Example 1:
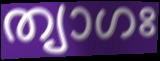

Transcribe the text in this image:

ത്യാഗഃ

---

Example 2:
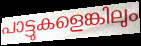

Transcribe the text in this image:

പാട്ടുകളെങ്കിലും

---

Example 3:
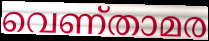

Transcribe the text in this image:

വെണ്താമര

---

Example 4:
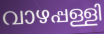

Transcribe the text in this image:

വാഴപ്പള്ളി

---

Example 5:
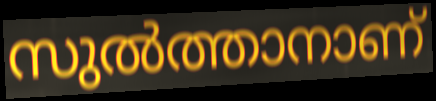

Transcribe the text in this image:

സുൽത്താനാണ്